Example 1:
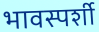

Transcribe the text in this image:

भावस्पर्शी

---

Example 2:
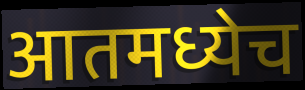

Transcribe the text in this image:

आतमध्येच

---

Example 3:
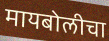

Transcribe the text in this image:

मायबोलीचा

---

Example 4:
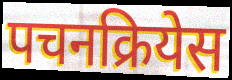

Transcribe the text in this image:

पचनक्रियेस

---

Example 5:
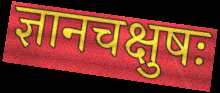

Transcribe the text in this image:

ज्ञानचक्षुषः